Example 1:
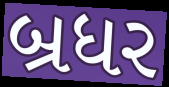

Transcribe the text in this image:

બ્રધર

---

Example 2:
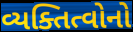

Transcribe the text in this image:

વ્યક્તિત્વોનો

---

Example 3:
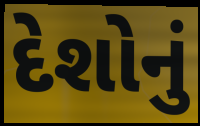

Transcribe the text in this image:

દેશોનું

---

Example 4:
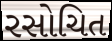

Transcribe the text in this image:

રસોચિત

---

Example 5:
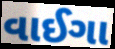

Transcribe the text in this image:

વાઈગા